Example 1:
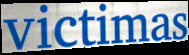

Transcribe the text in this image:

victimas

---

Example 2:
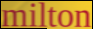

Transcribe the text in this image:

milton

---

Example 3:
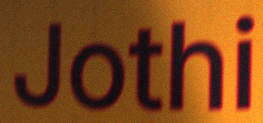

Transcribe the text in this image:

Jothi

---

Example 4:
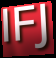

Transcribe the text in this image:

IFJ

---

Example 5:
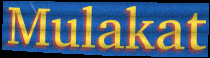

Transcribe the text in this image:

Mulakat